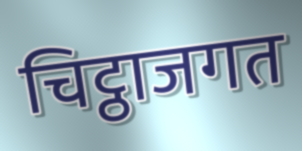
चिट्ठाजगत